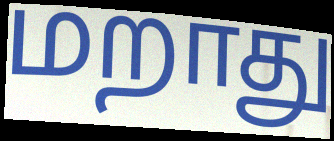
மறாது